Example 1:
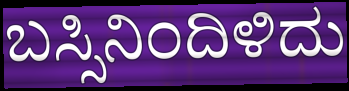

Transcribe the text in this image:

ಬಸ್ಸಿನಿಂದಿಳಿದು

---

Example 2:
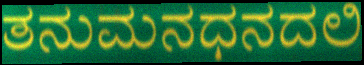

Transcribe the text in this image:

ತನುಮನಧನದಲಿ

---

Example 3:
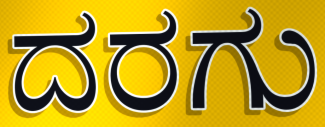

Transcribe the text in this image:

ದರಗು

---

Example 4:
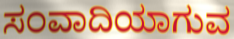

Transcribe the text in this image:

ಸಂವಾದಿಯಾಗುವ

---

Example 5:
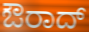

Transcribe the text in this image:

ಔರಾದ್